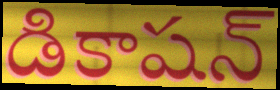
డికాషన్